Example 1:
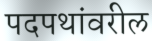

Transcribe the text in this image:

पदपथांवरील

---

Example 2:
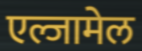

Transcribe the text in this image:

एल्जामेल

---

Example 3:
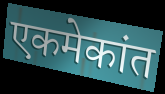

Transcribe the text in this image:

एकमेकांत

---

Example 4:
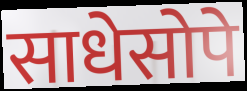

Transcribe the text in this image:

साधेसोपे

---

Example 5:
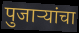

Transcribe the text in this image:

पुजाऱ्यांचा